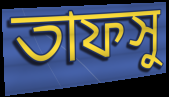
তাফসু